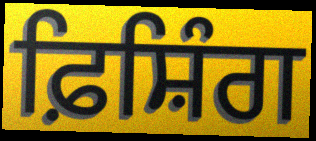
ਫ਼ਿਸ਼ਿੰਗ